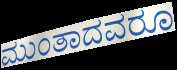
ಮುಂತಾದವರೂ